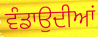
ਵੰਡਾਉਦੀਆਂ